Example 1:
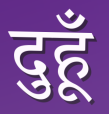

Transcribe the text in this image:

दुहूँ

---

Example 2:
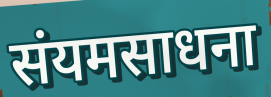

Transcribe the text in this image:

संयमसाधना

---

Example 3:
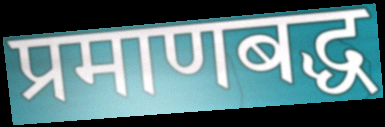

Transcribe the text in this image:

प्रमाणबद्ध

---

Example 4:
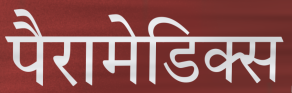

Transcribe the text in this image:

पैरामेडिक्स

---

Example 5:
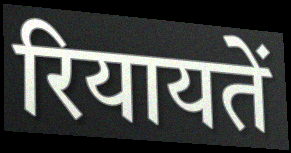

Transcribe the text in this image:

रियायतें